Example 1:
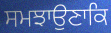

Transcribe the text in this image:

ਸਮਝਾਉਣਾਕਿ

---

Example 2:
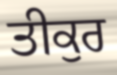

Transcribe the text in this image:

ਤੀਕੁਰ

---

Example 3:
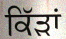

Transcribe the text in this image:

ਕਿੱੜਾਂ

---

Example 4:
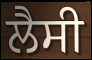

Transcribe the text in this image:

ਲੈਸੀ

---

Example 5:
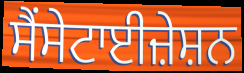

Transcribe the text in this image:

ਸੈਂਸੇਟਾਈਜ਼ੇਸ਼ਨ